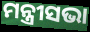
ମନ୍ତ୍ରୀସଭା